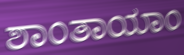
ಶಾಂತಾಯಾಂ